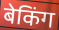
बेकिंग